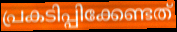
പ്രകടിപ്പിക്കേണ്ടത്